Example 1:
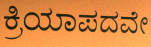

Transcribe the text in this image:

ಕ್ರಿಯಾಪದವೇ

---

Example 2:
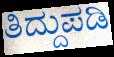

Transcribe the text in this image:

ತಿದ್ದುಪಡಿ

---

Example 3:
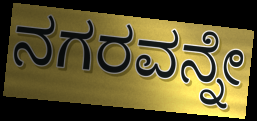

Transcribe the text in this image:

ನಗರವನ್ನೇ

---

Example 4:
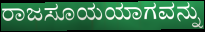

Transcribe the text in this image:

ರಾಜಸೂಯಯಾಗವನ್ನು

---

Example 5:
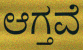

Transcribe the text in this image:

ಆಗ್ತವೆ